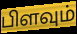
பிளவும்